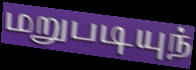
மறுபடியுந்